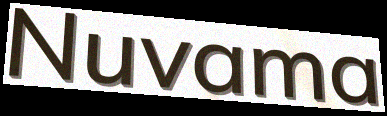
Nuvama